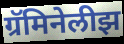
ग्रॅमिनेलीझ